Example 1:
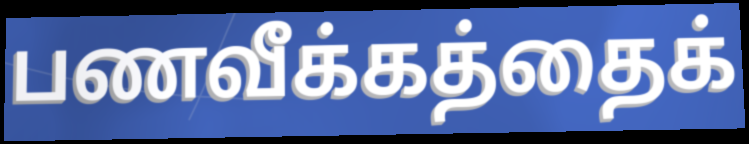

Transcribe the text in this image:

பணவீக்கத்தைக்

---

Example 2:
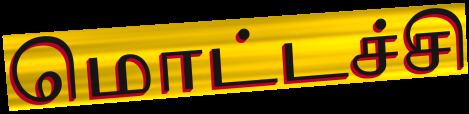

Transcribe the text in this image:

மொட்டச்சி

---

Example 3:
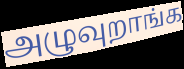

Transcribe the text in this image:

அழுவுறாங்க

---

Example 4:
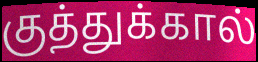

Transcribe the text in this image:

குத்துக்கால்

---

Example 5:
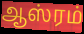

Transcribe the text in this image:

ஆஸ்ரம்